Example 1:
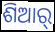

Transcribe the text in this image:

ଶିଆର୍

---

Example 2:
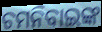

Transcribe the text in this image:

ଚମନିବାଇଙ୍କ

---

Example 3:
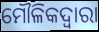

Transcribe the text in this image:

ମୌଳିକଦ୍ଵାରା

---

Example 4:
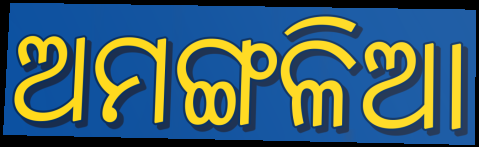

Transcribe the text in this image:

ଅମଙ୍ଗଳିଆ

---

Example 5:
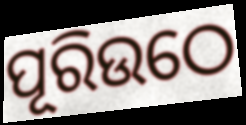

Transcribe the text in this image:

ପୂରିଉଠେ